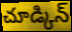
చూడ్కిన్